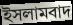
ইসলামবাদ